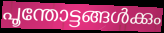
പൂന്തോട്ടങ്ങൾക്കും